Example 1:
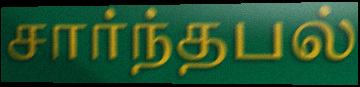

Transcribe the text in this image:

சார்ந்தபல்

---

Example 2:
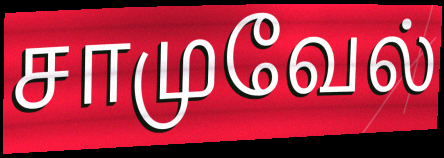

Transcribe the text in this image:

சாமுவேல்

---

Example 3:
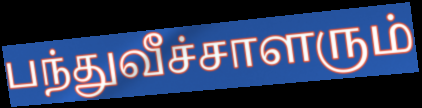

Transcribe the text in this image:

பந்துவீச்சாளரும்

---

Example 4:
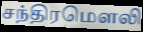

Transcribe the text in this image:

சந்திரமௌலி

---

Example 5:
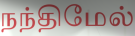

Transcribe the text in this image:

நந்திமேல்